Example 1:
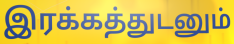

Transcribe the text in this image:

இரக்கத்துடனும்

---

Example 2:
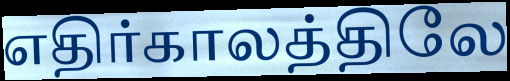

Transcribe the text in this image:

எதிர்காலத்திலே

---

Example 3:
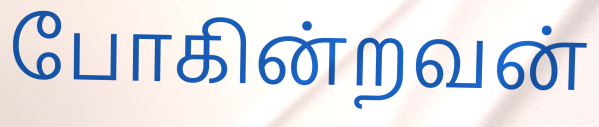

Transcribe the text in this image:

போகின்றவன்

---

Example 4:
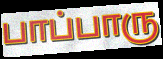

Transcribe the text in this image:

பாப்பாரு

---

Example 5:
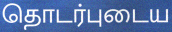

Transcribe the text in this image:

தொடர்புடைய